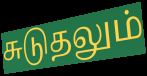
சுடுதலும்